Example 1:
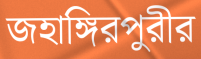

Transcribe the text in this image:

জহাঙ্গিরপুরীর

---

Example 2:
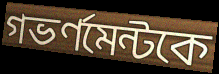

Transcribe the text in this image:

গভর্ণমেন্টকে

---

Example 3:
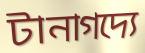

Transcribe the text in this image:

টানাগদ্যে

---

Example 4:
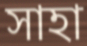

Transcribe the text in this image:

সাহা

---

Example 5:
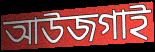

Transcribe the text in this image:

আউজগাই